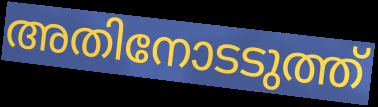
അതിനോടടുത്ത്